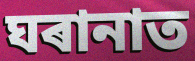
ঘৰানাত